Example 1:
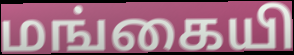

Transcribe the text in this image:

மங்கையி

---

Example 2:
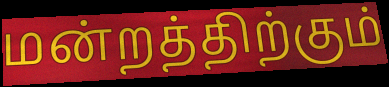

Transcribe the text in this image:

மன்றத்திற்கும்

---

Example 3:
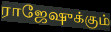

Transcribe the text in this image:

ராஜேஷுக்கும்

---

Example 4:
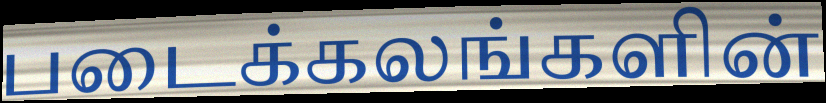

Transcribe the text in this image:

படைக்கலங்களின்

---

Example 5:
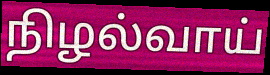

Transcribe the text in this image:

நிழல்வாய்